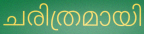
ചരിത്രമായി